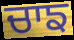
ਚਾਙ